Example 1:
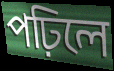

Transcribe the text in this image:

পঢ়িলে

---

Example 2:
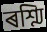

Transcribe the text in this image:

ৰশ্মি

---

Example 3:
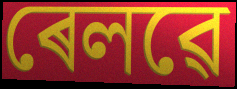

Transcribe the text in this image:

ৰেলৱে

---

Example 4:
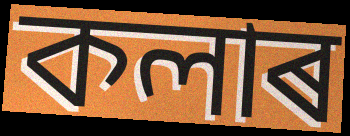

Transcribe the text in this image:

কলাৰ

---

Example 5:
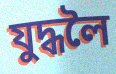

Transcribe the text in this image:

যুদ্ধলৈ